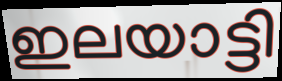
ഇലയാട്ടി